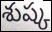
శుష్క